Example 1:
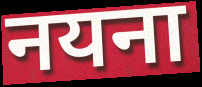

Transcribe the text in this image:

नयना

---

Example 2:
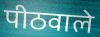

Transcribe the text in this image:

पीठवाले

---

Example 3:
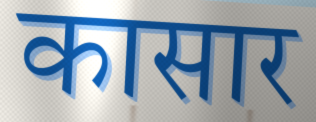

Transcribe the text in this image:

कासार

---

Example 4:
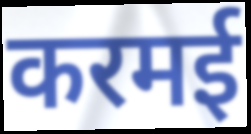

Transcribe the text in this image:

करमई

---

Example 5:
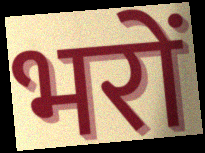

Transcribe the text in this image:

भरों